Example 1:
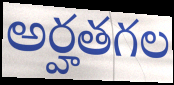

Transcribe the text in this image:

అర్హతగల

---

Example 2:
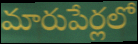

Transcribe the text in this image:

మారుపేర్లలో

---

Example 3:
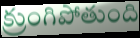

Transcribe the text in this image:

క్రుంగిపోతుంది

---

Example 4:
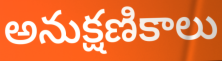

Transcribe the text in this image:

అనుక్షణికాలు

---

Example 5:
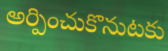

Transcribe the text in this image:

అర్పించుకొనుటకు